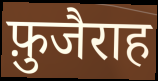
फ़ुजैराह